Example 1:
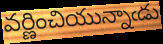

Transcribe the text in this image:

వర్ణించియున్నాఁడు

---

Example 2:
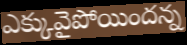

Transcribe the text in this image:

ఎక్కువైపోయిందన్న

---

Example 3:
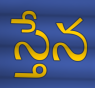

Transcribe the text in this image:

స్తేన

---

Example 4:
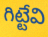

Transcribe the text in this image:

గిట్టేవి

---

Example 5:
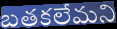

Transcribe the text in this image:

బతకలేమని